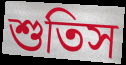
শুতিস